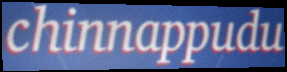
chinnappudu